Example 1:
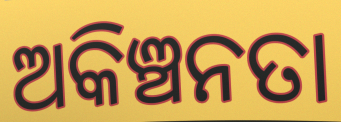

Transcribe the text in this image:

ଅକିଞ୍ଚନତା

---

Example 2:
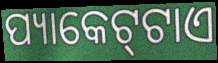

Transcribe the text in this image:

ପ୍ୟାକେଟ୍‌ଟାଏ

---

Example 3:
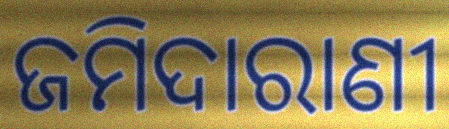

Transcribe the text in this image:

ଜମିଦାରାଣୀ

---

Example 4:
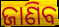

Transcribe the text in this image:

ଜାଣିବ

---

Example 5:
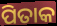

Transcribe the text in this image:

ପିତାକ